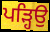
ਪੜ੍ਹਿਉ